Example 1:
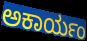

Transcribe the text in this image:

ಅಕಾರ್ಯಂ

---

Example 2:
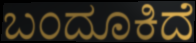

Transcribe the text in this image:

ಬಂದೂಕಿದೆ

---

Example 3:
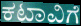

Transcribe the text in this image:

ಕಟಾವಿಗೆ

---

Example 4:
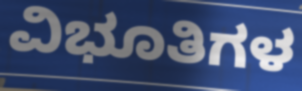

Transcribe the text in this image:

ವಿಭೂತಿಗಳ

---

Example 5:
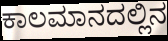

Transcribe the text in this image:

ಕಾಲಮಾನದಲ್ಲಿನ